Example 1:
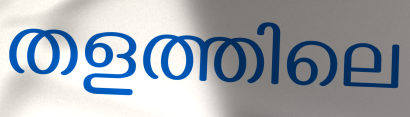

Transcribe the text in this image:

തളത്തിലെ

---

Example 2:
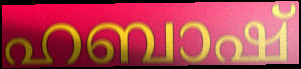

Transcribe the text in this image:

ഹബാഷ്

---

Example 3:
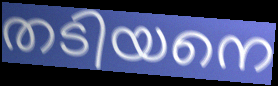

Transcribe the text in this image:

തടിയനെ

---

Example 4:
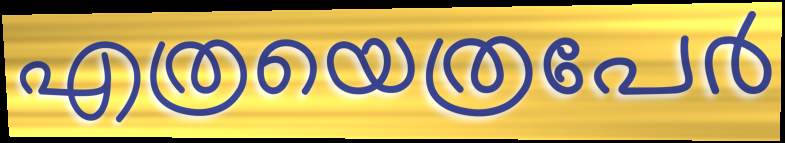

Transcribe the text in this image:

എത്രയെത്രപേർ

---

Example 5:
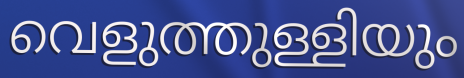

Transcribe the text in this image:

വെളുത്തുള്ളിയും